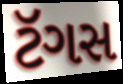
ટૅગસ